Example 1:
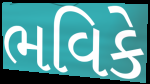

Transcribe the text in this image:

ભવિકે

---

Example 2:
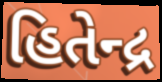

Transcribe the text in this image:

હિતેન્દ્ર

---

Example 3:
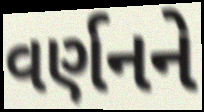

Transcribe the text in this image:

વર્ણનને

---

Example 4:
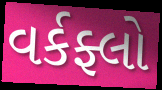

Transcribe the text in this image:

વર્કફ્લો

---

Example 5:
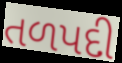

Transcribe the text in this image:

તળપદી